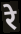
रे